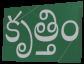
కృత్తిం